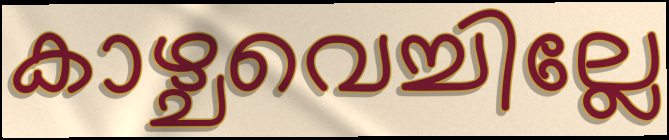
കാഴ്ചവെച്ചില്ലേ